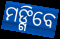
ମଙ୍ଗିବେ